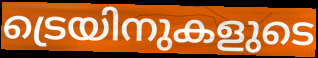
ട്രെയിനുകളുടെ